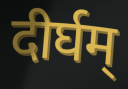
दीर्घम्